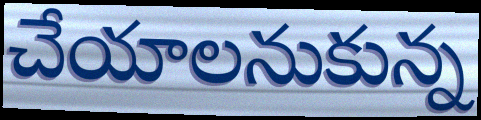
చేయాలనుకున్న